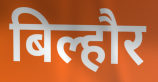
बिल्हौर